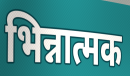
भिन्नात्मक